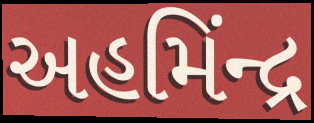
અહમિંન્દ્ર